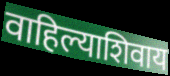
वाहिल्याशिवाय